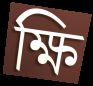
ক্ষি